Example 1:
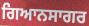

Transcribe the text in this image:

ਗਿਆਨਸਾਗਰ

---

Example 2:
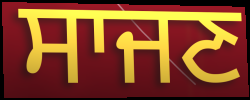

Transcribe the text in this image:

ਸਾਜਣ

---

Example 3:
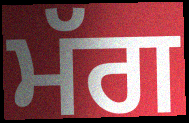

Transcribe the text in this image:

ਮੱਗ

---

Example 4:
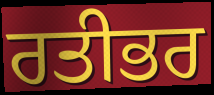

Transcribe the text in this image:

ਰਤੀਭਰ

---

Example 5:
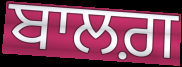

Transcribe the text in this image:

ਬਾਲਗ਼